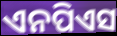
ଏନପିଏସ